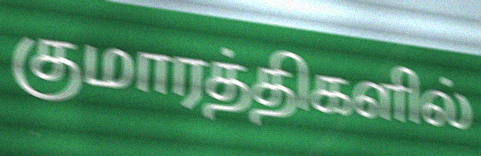
குமாரத்திகளில்